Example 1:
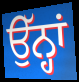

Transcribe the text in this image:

ਉੱਨ੍ਹਾਂ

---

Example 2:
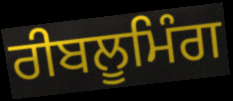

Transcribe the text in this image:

ਰੀਬਲੂਮਿੰਗ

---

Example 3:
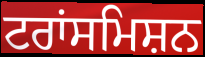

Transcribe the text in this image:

ਟਰਾਂਸਮਿਸ਼ਨ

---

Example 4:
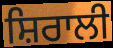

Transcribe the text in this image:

ਸ਼ਿਰਾਲੀ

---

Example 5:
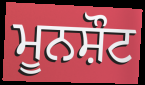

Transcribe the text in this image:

ਮੂਨਸ਼ੌਟ